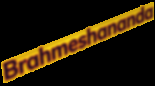
Brahmeshananda